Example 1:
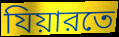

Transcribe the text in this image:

যিয়ারতে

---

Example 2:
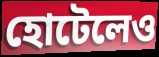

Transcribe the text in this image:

হোটেলেও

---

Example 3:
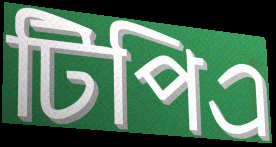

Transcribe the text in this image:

টিপিএ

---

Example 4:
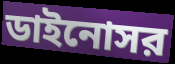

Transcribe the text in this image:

ডাইনোসর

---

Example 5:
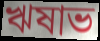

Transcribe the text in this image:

ঋষাভ